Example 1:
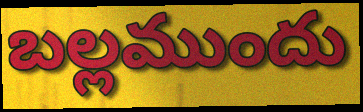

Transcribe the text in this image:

బల్లముందు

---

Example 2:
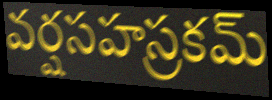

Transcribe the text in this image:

వర్షసహస్రకమ్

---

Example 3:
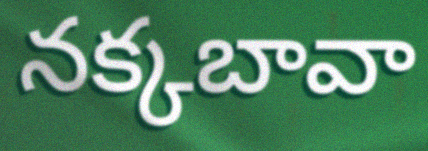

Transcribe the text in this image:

నక్కబావా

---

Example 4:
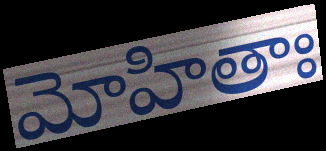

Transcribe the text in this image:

మోహితాః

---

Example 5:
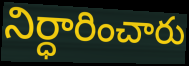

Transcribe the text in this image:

నిర్ధారించారు